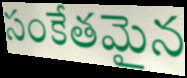
సంకేతమైన